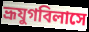
ভ্রূযুগবিলাসে